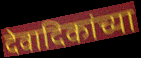
देवादिकांच्या